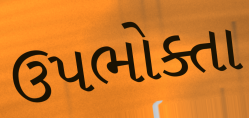
ઉપભોક્તા